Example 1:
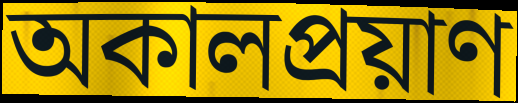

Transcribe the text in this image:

অকালপ্রয়াণ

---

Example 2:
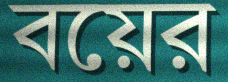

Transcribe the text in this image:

বয়ের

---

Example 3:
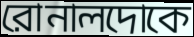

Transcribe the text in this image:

রোনালদোকে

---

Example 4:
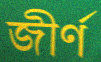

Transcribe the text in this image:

জীর্ণ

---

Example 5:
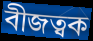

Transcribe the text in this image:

বীজত্বক